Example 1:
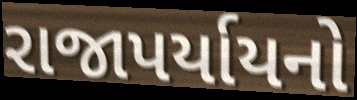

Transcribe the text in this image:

રાજાપર્યાયનો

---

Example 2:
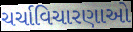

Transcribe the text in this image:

ચર્ચાવિચારણાઓ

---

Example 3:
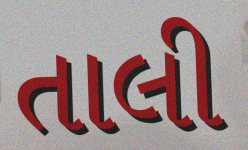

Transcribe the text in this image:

તાલી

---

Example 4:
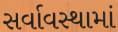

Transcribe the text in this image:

સર્વાવસ્થામાં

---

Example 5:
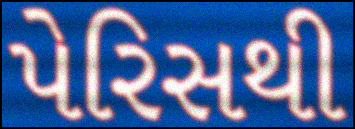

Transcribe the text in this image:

પેરિસથી